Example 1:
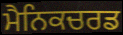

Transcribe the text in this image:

ਮੈਨਿਕਚਰਡ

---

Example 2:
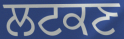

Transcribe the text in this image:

ਲਟਕਣ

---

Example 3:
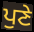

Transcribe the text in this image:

ਪੁਣੇ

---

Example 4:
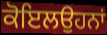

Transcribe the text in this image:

ਕੋਇਲਉਹਨਾਂ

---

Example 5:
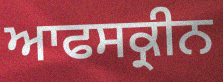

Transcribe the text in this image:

ਆਫਸਕ੍ਰੀਨ